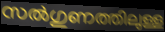
സൽഗുണത്തിലുള്ള